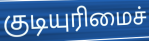
குடியுரிமைச்